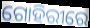
ଗୋହିରୀରେ